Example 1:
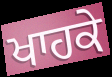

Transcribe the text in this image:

ਖਾਹਕੇ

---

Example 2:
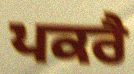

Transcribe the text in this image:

ਪਕਰੈ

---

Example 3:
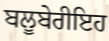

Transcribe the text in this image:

ਬਲੂਬੇਰੀਇਹ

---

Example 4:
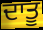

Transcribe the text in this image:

ਦਾਤੂ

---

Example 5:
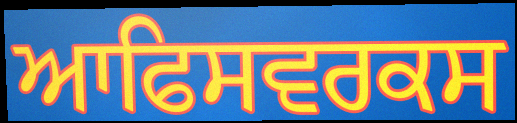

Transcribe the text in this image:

ਆਫਿਸਵਰਕਸ